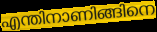
എന്തിനാണിങ്ങിനെ